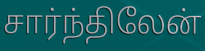
சார்ந்திலேன்